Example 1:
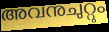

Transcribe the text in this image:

അവനുചുറ്റും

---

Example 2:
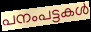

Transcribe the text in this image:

പനംപട്ടകൾ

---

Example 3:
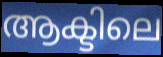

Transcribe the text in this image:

ആക്ടിലെ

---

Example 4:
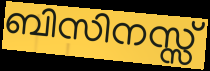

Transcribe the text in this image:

ബിസിനസ്സ്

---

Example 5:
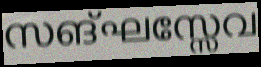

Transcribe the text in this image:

സങ്ഘസ്സേവ